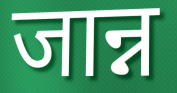
जान्न